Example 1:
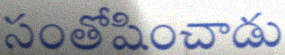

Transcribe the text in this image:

సంతోషించాడు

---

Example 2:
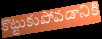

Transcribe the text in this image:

కొట్టుకుపోవడానికి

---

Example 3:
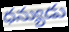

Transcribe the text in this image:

ధన్యుడు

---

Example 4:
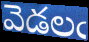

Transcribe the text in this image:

వెడలఁ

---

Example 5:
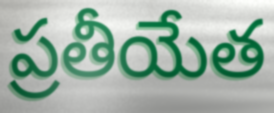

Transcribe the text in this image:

ప్రతీయేత